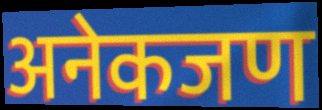
अनेकजण